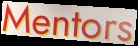
Mentors